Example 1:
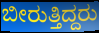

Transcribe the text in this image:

ಬೀರುತ್ತಿದ್ದರು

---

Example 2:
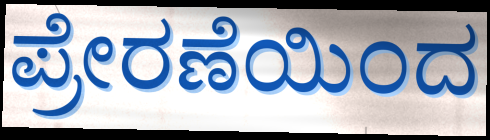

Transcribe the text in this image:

ಪ್ರೇರಣೆಯಿಂದ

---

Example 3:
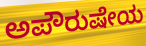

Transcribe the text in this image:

ಅಪೌರುಷೇಯ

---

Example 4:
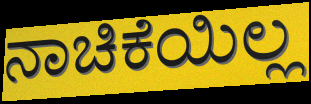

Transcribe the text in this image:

ನಾಚಿಕೆಯಿಲ್ಲ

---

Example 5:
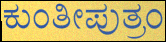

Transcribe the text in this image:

ಕುಂತೀಪುತ್ರಂ